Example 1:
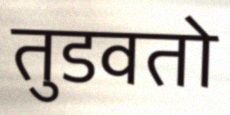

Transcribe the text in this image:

तुडवतो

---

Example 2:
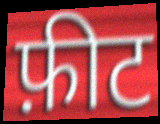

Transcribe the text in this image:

फ़ीट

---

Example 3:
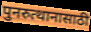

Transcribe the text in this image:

पुनरुत्थानासाठी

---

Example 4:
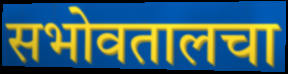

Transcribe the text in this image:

सभोवतालचा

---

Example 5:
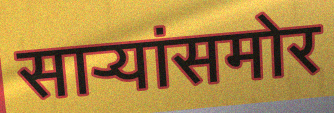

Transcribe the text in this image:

साऱ्यांसमोर